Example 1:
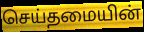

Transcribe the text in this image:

செய்தமையின்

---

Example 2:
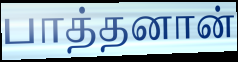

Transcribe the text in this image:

பாத்தனான்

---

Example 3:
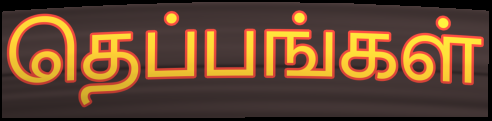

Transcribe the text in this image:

தெப்பங்கள்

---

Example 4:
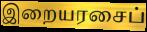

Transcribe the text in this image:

இறையரசைப்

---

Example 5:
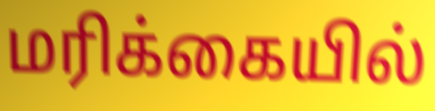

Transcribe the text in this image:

மரிக்கையில்